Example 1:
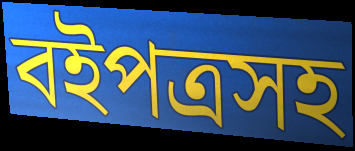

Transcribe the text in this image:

বইপত্রসহ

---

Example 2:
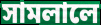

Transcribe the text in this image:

সামলালে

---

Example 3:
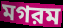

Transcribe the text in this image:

মগরম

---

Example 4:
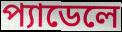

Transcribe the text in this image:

প্যাডেলে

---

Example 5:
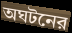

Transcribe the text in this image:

অঘটনের